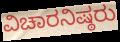
ವಿಚಾರನಿಷ್ಠರು